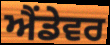
ਐਂਡੇਵਰ